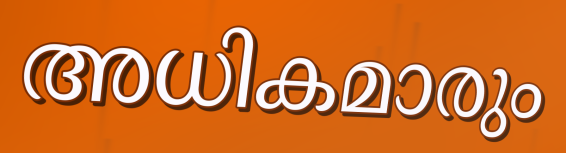
അധികമാരും